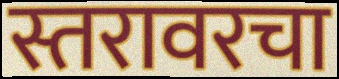
स्तरावरचा